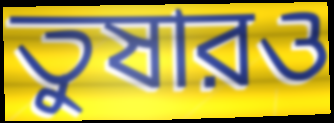
তুষারও